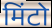
मिंटो